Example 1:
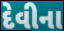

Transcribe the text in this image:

દેવીના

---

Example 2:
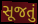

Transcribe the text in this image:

સૂજતું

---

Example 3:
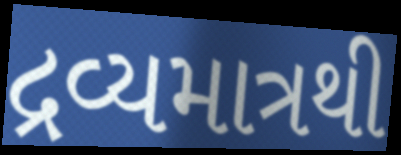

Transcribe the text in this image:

દ્રવ્યમાત્રથી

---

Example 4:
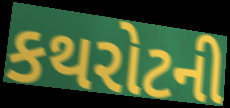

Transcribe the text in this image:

કથરોટની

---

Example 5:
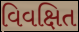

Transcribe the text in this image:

વિવક્ષિત